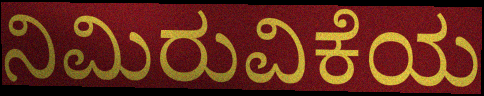
ನಿಮಿರುವಿಕೆಯ